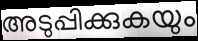
അടുപ്പിക്കുകയും